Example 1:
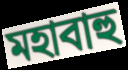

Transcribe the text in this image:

মহাবাহু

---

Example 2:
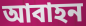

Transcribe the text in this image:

আবাহন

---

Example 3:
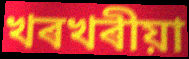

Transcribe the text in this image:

খৰখৰীয়া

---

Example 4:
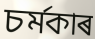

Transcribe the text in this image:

চৰ্মকাৰ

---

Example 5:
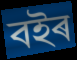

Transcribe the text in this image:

বইৰ